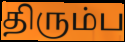
திரும்ப